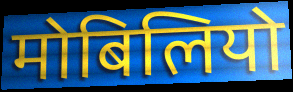
मोबिलियो